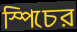
স্পিচের